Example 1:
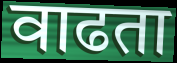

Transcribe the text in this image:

वाढता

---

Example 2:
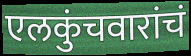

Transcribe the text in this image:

एलकुंचवारांचं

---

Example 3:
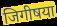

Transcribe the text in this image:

जिगीषया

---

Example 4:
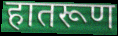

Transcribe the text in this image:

हातरूण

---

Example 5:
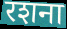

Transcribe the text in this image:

रशना